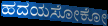
ಹದಯಸೋಕೋ